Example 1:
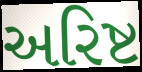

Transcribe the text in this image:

અરિષ્ટ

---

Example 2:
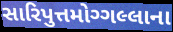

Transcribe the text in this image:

સારિપુત્તમોગ્ગલ્લાના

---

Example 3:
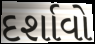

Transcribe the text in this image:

દર્શાવો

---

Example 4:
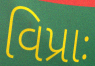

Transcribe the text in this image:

વિપ્રાઃ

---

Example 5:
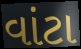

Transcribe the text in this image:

વાંટા